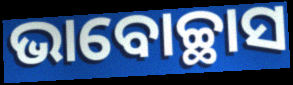
ଭାବୋଚ୍ଛାସ